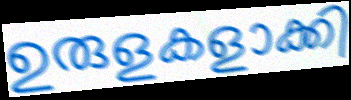
ഉരുളകളാക്കി